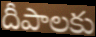
దీపాలకు